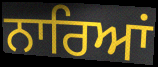
ਨਾਰਿਆਂ